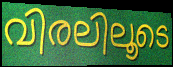
വിരലിലൂടെ